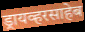
ड्रायव्हरसाहेब